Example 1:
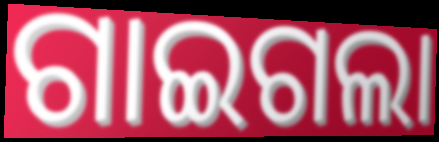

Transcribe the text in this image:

ଗାଇଗଲା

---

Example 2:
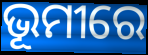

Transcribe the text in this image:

ଭୂମୀରେ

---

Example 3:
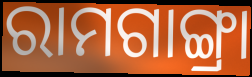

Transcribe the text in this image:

ରାମଗାଙ୍ଗ୍ରା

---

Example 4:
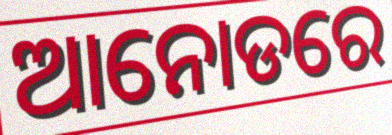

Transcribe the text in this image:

ଆନୋଡରେ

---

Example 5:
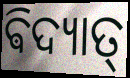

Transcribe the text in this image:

ଵିଦ୍ଯାତ୍